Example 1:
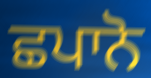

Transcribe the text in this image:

ਛਪਾਨੋ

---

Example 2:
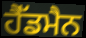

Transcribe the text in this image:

ਹੈੱਡਮੈਨ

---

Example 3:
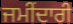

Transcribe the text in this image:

ਜਮੀਂਦਾਰੀ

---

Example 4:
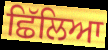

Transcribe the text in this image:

ਛਿੱਲਿਆ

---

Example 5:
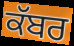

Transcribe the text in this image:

ਕੱਬਰ